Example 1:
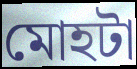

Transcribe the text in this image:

মোহটা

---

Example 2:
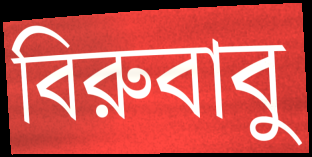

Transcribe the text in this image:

বিরুবাবু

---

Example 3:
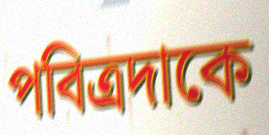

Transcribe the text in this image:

পবিত্রদাকে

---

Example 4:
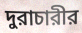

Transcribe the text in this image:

দুরাচারীর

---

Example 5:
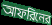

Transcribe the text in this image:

আফরিনের